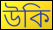
উকি